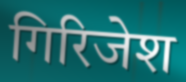
गिरिजेश